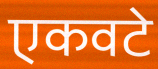
एकवटे